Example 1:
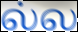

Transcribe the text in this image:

ல்ல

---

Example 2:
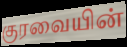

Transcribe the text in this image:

குரவையின்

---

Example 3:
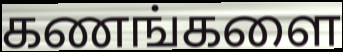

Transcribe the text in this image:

கணங்களை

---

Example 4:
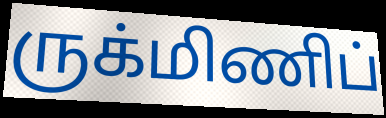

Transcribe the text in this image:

ருக்மிணிப்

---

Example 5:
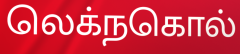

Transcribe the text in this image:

லெக்நகொல்